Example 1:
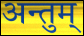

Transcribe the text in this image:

अन्तुम्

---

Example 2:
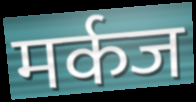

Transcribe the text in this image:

मर्कज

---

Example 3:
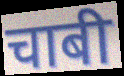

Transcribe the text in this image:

चाबी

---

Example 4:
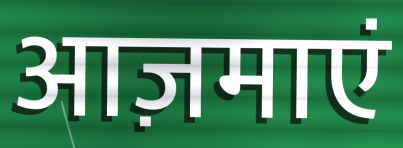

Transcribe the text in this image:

आज़माएं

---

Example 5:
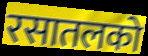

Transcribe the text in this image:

रसातलको